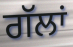
ਗੱਲਾਂ